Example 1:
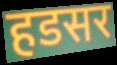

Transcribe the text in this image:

हडसर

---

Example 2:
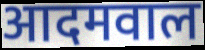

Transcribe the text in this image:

आदमवाल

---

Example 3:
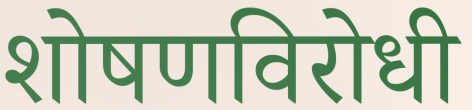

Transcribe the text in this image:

शोषणविरोधी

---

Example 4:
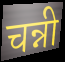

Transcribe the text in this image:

चन्नी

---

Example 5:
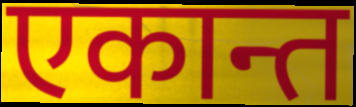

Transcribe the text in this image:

एकान्त